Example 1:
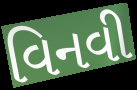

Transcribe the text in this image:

વિનવી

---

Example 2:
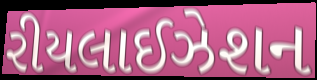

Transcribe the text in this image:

રીયલાઈઝેશન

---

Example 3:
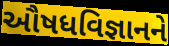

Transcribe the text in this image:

ઔષધવિજ્ઞાનને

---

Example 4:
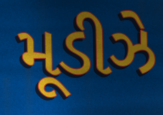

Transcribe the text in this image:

મૂડીઝે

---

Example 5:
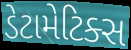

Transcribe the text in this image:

ડેટામેટિક્સ